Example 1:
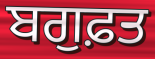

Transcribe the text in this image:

ਬਗੁਫ਼ਤ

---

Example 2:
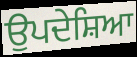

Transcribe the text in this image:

ਉਪਦੇਸ਼ਿਆ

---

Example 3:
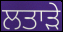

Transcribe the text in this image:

ਲਤਾਡ਼ੇ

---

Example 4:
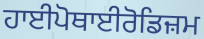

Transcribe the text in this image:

ਹਾਈਪੋਥਾਈਰੋਡਿਜ਼ਮ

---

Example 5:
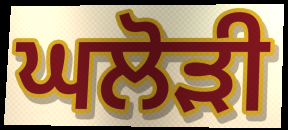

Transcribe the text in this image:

ਘਲੋਡ਼ੀ